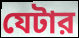
যেটার